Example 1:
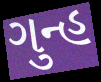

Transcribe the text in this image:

ગુન્હ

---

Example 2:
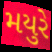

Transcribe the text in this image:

મયુરે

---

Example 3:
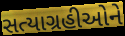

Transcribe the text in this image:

સત્યાગ્રહીઓને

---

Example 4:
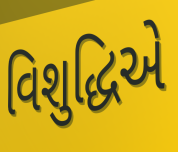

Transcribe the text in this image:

વિશુદ્ધિએ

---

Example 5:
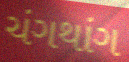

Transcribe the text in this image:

ચંગથાંગ